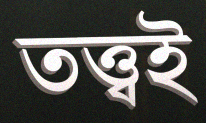
তত্ত্বই